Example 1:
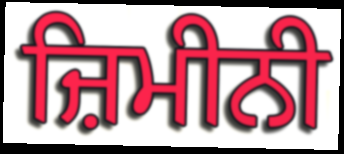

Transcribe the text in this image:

ਜ਼ਿਮੀਨੀ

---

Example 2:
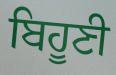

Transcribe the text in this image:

ਬਿਹੂਣੀ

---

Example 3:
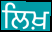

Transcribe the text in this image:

ਲਿਖ਼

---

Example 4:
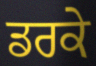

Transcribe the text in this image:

ਡਰਕੇ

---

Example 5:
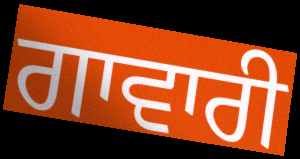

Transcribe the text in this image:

ਗਾਵਾਰੀ